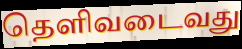
தெளிவடைவது